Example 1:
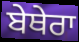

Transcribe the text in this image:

ਬੇਥੇਰਾ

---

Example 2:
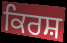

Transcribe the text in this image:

ਕਿਰਸ਼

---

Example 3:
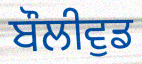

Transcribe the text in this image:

ਬੌਲੀਵੁਡ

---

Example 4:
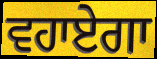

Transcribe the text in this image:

ਵਹਾਏਗਾ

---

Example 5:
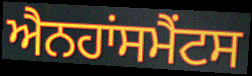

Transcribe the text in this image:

ਐਨਹਾਂਸਮੈਂਟਸ